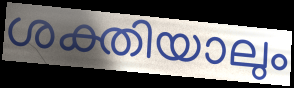
ശക്തിയാലും